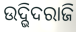
ଉଦ୍ଭିଦରାଜି